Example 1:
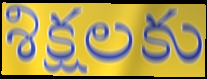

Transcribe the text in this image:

శిక్షలకు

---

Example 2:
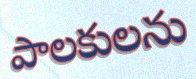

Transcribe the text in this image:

పాలకులను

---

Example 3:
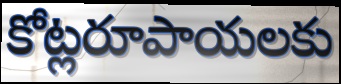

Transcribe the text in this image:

కోట్లరూపాయలకు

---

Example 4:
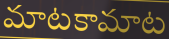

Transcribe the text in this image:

మాటకామాట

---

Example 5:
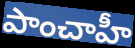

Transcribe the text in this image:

పాంచాహీ